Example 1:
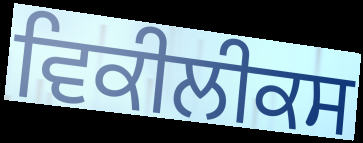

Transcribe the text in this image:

ਵਿਕੀਲੀਕਸ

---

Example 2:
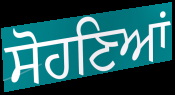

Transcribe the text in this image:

ਸੋਹਣਿਆਂ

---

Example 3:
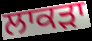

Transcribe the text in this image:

ਲਾਕੜਾ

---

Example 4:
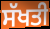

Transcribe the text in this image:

ਸੱਖਤੀ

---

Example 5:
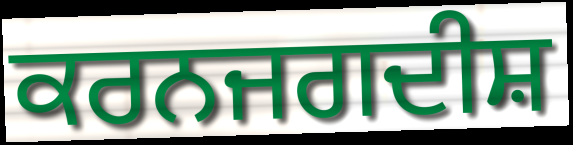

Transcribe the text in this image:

ਕਰਨਜਗਦੀਸ਼